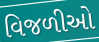
વિજળીઓ